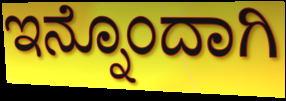
ಇನ್ನೊಂದಾಗಿ